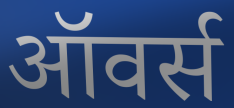
ऑवर्स